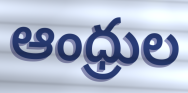
ఆంధ్రుల